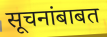
सूचनांबाबत